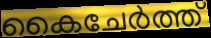
കൈചേർത്ത്